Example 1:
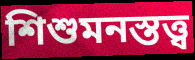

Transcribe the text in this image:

শিশুমনস্তত্ত্ব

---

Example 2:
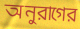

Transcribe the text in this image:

অনুরাগের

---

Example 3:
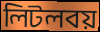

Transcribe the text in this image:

লিটলবয়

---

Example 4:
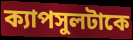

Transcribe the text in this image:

ক্যাপসুলটাকে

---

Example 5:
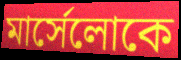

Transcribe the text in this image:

মার্সেলোকে